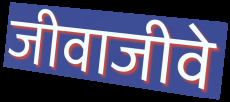
जीवाजीवे